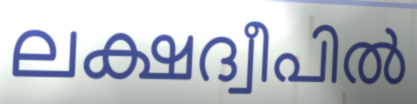
ലക്ഷദ്വീപിൽ